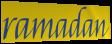
ramadan